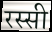
रस्सी